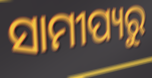
ସାମୀପ୍ୟରୁ